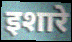
इशारे